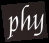
phy